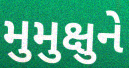
મુમુક્ષુને